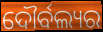
ଦୌର୍ବଲ୍ୟର